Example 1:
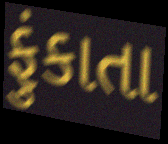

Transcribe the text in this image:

ફુંકાતા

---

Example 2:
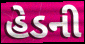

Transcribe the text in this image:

હેડની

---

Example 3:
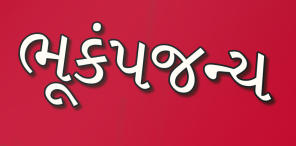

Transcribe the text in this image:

ભૂકંપજન્ય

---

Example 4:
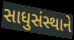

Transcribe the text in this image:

સાધુસંસ્થાને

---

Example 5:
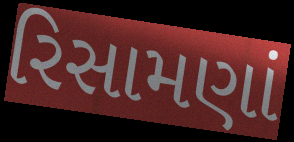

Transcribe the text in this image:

રિસામણાં